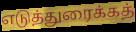
எடுத்துரைக்கத்